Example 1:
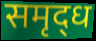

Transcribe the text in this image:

समृद्ध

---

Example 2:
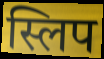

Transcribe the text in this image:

स्लिप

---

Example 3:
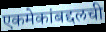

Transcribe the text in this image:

एकमेकांबद्दलची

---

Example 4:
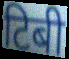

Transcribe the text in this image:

टिबी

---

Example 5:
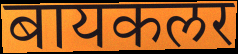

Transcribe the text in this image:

बायकलर